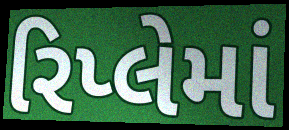
રિપ્લેમાં